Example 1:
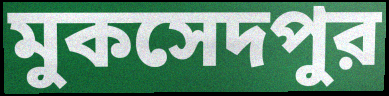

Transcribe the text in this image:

মুকসেদপুর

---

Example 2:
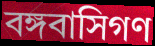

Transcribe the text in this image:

বঙ্গবাসিগণ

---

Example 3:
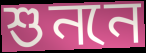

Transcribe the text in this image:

শুননে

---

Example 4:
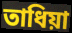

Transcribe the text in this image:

তাধিয়া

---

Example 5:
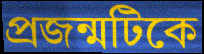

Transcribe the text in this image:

প্রজন্মটিকে